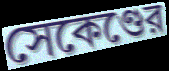
সেকেণ্ডের